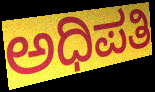
ಅಧಿಪತಿ